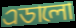
এডালো